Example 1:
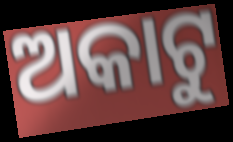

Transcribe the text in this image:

ଅକାଟୁ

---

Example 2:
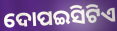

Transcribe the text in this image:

ଦୋପଇସିଟିଏ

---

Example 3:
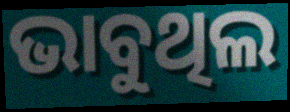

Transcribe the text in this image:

ଭାବୁଥିଲ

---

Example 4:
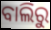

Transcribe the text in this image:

ବାଲିରୁ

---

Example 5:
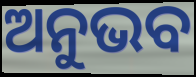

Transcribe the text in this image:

ଅନୁଭବ